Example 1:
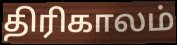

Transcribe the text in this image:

திரிகாலம்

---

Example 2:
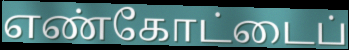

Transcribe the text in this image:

எண்கோட்டைப்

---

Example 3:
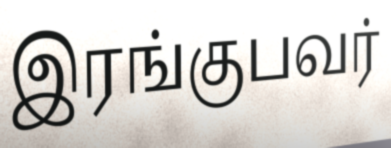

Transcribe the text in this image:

இரங்குபவர்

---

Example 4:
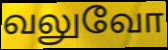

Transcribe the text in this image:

வலுவோ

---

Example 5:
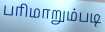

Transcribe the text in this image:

பரிமாறும்படி